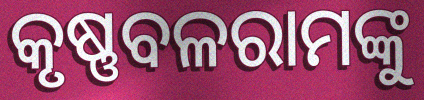
କୃଷ୍ଣବଳରାମଙ୍କୁ